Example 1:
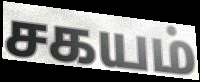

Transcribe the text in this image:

சகயம்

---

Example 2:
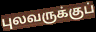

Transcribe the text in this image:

புலவருக்குப்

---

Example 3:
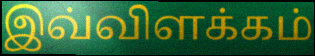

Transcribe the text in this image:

இவ்விளக்கம்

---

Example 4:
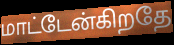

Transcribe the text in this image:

மாட்டேன்கிறதே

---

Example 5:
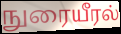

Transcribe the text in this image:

நுரையீரல்